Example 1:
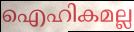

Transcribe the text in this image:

ഐഹികമല്ല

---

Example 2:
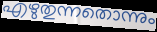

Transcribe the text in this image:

എഴുതുന്നതൊന്നും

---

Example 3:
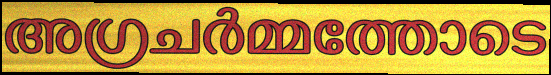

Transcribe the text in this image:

അഗ്രചർമ്മത്തോടെ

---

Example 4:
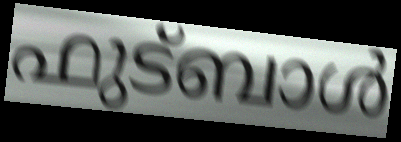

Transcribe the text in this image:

ഫുട്ബാൾ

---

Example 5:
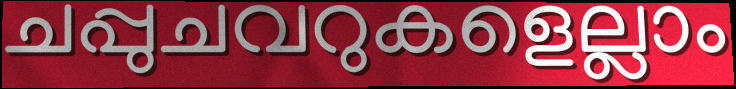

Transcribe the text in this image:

ചപ്പുചവറുകളെല്ലാം